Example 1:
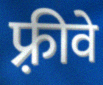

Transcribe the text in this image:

फ़्रीवे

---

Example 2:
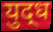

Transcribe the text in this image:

युद्ध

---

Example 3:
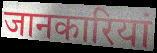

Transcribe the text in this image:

जानकारियां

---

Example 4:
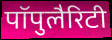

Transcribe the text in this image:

पॉपुलैरिटी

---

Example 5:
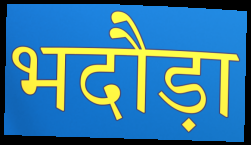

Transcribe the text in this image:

भदौड़ा